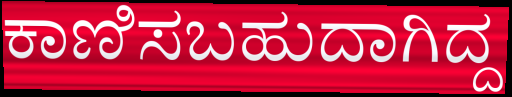
ಕಾಣಿಸಬಹುದಾಗಿದ್ದ